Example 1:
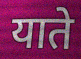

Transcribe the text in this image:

याते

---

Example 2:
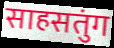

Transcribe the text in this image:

साहसतुंग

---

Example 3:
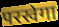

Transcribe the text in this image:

परखेगा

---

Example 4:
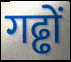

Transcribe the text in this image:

गढ्ढों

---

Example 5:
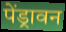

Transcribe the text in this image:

पेंड्रावन